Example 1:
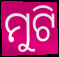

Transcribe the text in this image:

ମୁଟି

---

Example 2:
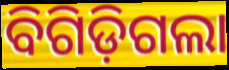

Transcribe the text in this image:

ବିଗିଡ଼ିଗଲା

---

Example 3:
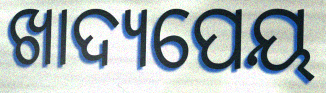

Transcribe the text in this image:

ଖାଦ୍ୟପେୟ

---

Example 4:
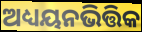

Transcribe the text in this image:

ଅଧ୍ୟୟନଭିତ୍ତିକ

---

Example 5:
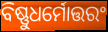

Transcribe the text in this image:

ବିଷ୍ଣୁଧର୍ମୋତ୍ତରଂ